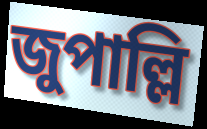
জুপাল্লি